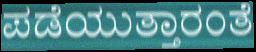
ಪಡೆಯುತ್ತಾರಂತೆ